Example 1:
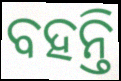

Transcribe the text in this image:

ବହନ୍ତି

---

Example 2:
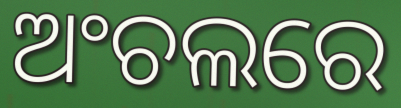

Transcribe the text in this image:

ଅଂଚଲରେ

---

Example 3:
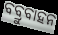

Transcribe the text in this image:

ବବ୍ରୁବାହନ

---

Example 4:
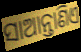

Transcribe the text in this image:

ସାଆନ୍ତାଣିଏ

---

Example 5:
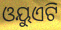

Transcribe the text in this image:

ଓୟୁଏଟି